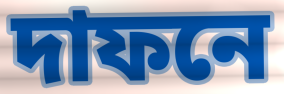
দাফনে